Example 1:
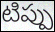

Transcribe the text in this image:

టిప్పు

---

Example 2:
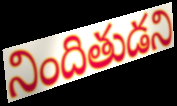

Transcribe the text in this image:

నిందితుడని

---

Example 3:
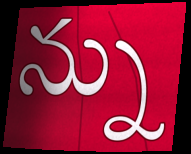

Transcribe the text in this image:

న్ను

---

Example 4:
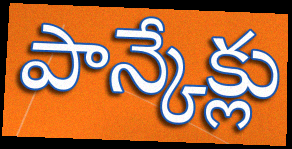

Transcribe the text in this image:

పాన్కేక్లు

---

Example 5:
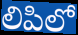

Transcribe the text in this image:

లిపిలో